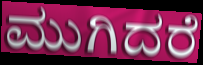
ಮುಗಿದರೆ